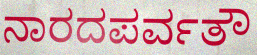
ನಾರದಪರ್ವತೌ